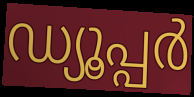
ഡ്യൂപ്പർ